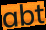
abt